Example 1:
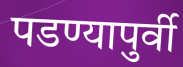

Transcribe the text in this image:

पडण्यापुर्वी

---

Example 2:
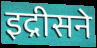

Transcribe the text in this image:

इद्रीसने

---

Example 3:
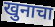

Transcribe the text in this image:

खुनाचा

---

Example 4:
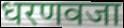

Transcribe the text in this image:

धरणवजा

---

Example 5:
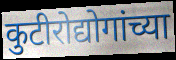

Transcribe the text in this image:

कुटीरोद्योगांच्या